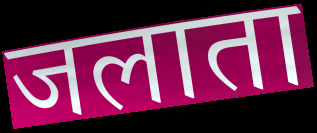
जलाता